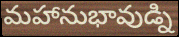
మహానుభావుడ్ని